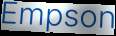
Empson